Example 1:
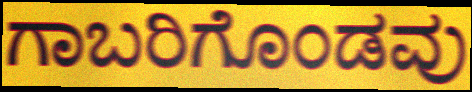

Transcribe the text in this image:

ಗಾಬರಿಗೊಂಡವು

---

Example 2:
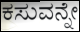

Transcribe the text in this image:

ಕಸುವನ್ನೇ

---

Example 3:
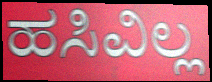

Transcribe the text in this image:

ಹಸಿವಿಲ್ಲ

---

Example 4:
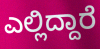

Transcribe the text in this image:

ಎಲ್ಲಿದ್ದಾರೆ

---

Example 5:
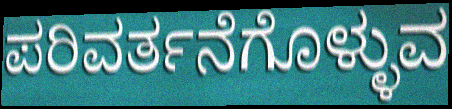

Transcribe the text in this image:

ಪರಿವರ್ತನೆಗೊಳ್ಳುವ